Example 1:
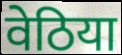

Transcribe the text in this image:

वेठिया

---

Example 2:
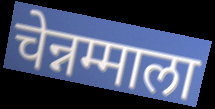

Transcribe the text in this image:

चेन्नम्माला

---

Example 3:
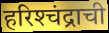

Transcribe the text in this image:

हरिश्‍चंद्राची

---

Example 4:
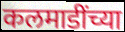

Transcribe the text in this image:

कलमाडींच्या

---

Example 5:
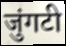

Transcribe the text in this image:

जुंगटी